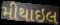
મીથાઇલ